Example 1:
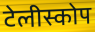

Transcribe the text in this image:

टेलीस्कोप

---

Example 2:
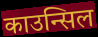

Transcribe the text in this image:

काउन्सिल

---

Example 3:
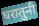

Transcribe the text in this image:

घरातुनी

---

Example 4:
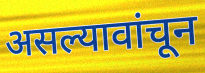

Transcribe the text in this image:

असल्यावांचून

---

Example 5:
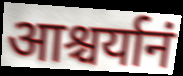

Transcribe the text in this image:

आश्चर्यानं